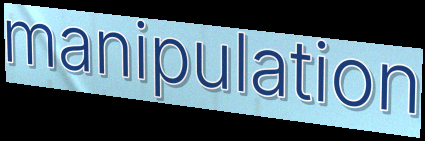
manipulation